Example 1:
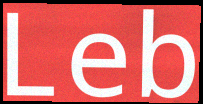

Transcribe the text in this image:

Leb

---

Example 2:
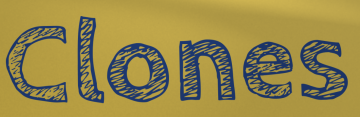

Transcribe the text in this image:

Clones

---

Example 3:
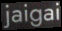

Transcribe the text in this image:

jaigai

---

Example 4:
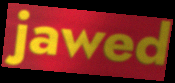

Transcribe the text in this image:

jawed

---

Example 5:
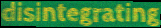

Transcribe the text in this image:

disintegrating